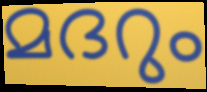
മദറും